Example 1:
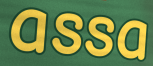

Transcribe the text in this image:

assa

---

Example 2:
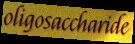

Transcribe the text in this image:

oligosaccharide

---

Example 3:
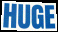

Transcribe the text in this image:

HUGE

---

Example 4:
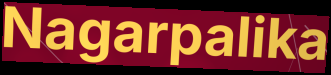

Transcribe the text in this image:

Nagarpalika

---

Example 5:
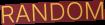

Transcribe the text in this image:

RANDOM